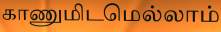
காணுமிடமெல்லாம்